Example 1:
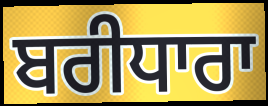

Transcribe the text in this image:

ਬਰੀਧਾਰਾ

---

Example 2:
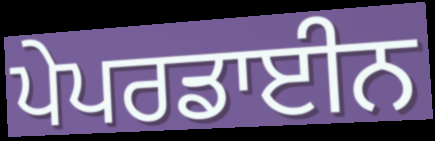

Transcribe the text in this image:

ਪੇਪਰਡਾਈਨ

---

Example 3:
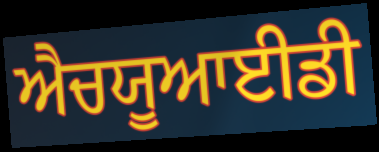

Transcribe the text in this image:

ਐਚਯੂਆਈਡੀ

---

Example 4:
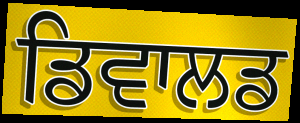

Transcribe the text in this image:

ਡਿਵਾਲਡ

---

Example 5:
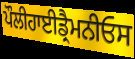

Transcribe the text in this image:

ਪੌਲੀਹਾਈਡ੍ਰੈਮਨੀਓਸ